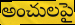
అంచులపై